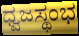
ಧ್ವಜಸ್ಥಂಭ